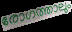
രോഗത്താലും